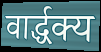
वार्द्धक्य